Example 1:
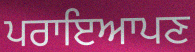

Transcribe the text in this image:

ਪਰਾਇਆਪਣ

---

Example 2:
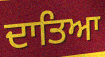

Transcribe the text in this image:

ਦਾਤਿਆ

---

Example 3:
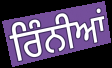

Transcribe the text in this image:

ਰਿੰਨੀਆਂ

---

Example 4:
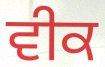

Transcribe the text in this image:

ਵੀਕ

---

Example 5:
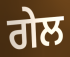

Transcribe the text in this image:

ਗੇਲ